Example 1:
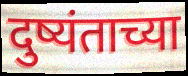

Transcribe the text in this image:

दुष्यंताच्या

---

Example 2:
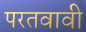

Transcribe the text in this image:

परतवावी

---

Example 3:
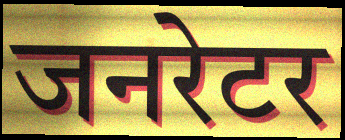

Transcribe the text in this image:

जनरेटर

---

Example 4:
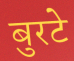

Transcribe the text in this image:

बुरटे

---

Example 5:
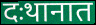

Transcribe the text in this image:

दःथानात